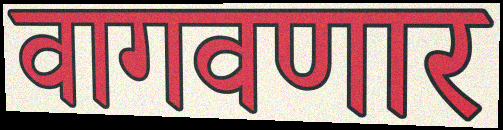
वागवणार